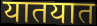
यातयात